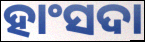
ହାଂସଦା